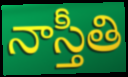
నాస్తీతి